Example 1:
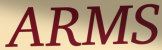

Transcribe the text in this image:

ARMS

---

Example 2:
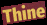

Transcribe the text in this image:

Thine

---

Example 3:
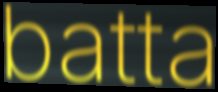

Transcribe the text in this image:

batta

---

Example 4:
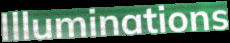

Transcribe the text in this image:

Illuminations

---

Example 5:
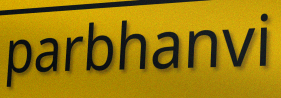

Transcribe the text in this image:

parbhanvi